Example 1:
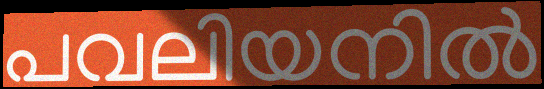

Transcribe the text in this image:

പവലിയനിൽ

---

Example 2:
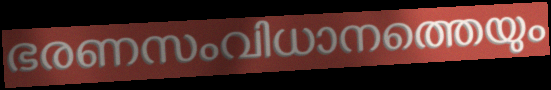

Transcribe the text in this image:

ഭരണസംവിധാനത്തെയും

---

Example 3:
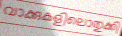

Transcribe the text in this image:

വാക്കുകളിലൊതുക്കി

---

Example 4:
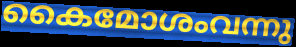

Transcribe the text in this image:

കൈമോശംവന്നു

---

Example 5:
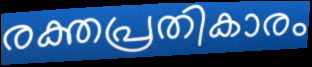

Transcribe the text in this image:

രക്തപ്രതികാരം